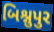
બિશ્નુપુર